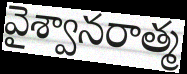
వైశ్వానరాత్మ